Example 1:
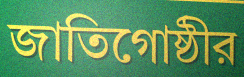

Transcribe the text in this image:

জাতিগোষ্ঠীর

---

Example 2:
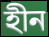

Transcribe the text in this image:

হীন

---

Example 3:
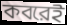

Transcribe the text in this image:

কবরেই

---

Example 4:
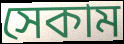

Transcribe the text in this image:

সেকাম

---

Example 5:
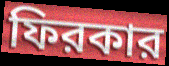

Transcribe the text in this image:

ফিরকার